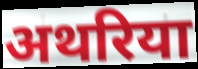
अथरिया